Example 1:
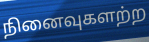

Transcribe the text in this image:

நினைவுகளற்ற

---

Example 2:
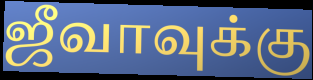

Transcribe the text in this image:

ஜீவாவுக்கு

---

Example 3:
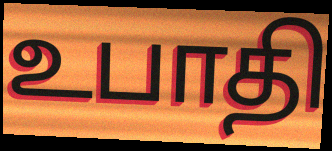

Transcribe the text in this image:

உபாதி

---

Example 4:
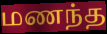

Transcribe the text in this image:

மணந்த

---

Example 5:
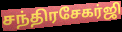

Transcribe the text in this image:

சந்திரசேகர்ஜி